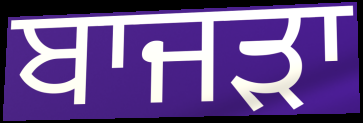
ਬਾਜਡ਼ਾ